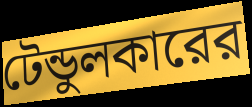
টেন্ডুলকারের